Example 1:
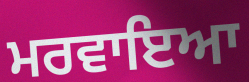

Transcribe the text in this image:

ਮਰਵਾਇਆ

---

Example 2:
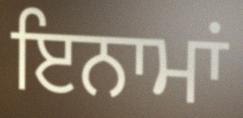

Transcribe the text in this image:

ਇਨਾਮਾਂ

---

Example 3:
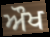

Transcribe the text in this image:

ਔਖ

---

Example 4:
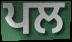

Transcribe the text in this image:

ਪਲ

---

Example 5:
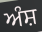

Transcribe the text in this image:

ਅੰਸ਼